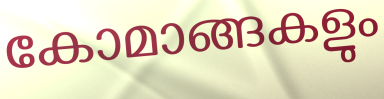
കോമാങ്ങകളും